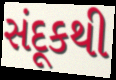
સંદૂકથી